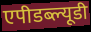
एपीडब्ल्यूडी